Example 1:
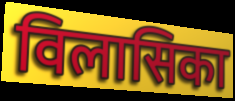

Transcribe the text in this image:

विलासिका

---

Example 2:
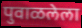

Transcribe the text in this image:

पुवाळलेला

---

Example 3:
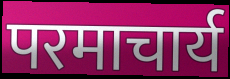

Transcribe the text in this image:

परमाचार्य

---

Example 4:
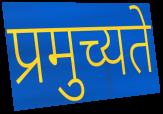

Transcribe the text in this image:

प्रमुच्यते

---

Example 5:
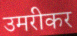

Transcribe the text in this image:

उमरीकर